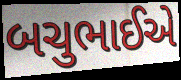
બચુભાઈએ